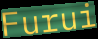
Furui